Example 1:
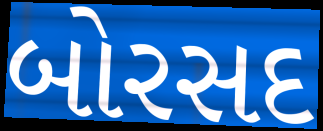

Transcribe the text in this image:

બોરસદ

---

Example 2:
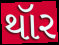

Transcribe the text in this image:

થૉર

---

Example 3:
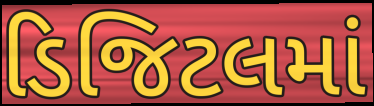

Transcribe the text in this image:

ડિજિટલમાં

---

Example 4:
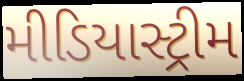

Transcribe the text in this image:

મીડિયાસ્ટ્રીમ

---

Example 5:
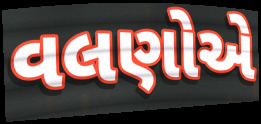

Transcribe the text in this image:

વલણોએ